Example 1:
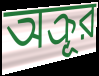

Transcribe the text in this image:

অক্রূর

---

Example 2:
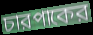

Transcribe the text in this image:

চারপাকের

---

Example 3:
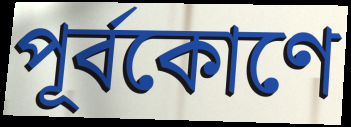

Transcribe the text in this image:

পূর্বকোণে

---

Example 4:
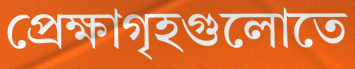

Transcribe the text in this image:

প্রেক্ষাগৃহগুলোতে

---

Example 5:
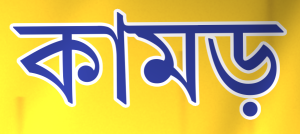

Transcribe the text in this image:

কামড়